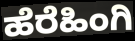
ಹೆರೆಹಿಂಗಿ